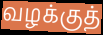
வழக்குத்